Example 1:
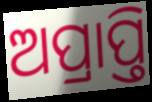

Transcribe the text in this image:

ଅପ୍ରାପ୍ତି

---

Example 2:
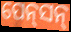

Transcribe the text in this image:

ପେନ୍‍ସନ୍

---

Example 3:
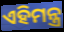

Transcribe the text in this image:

ଏହିମନ୍ତ୍ର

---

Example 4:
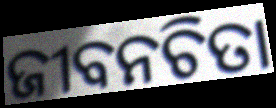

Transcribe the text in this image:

ଜୀବନଚିତା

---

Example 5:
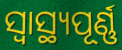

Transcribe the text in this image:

ସ୍ବାସ୍ଥ୍ୟପୂର୍ଣ୍ଣ